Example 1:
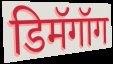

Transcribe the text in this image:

डिमॅगॉग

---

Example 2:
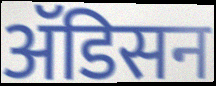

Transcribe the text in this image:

ॲडिसन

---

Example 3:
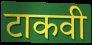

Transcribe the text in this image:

टाकवी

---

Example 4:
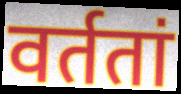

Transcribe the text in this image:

वर्ततां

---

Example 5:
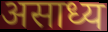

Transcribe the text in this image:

असाध्य